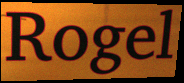
Rogel